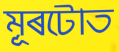
মূৰটোত